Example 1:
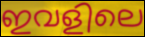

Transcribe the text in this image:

ഇവളിലെ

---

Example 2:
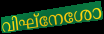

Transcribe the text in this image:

വിഘ്നേശോ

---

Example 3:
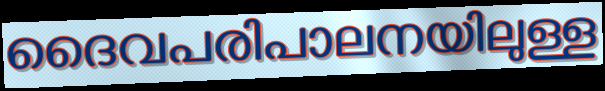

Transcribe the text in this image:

ദൈവപരിപാലനയിലുള്ള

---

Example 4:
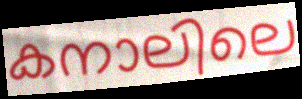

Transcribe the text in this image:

കനാലിലെ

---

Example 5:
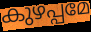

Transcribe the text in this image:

കുഴപ്പമേ